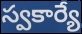
స్వకార్యే